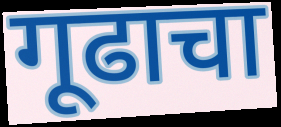
गूढाचा